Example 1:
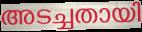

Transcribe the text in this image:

അടച്ചതായി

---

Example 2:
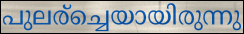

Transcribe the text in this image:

പുലര്ച്ചെയായിരുന്നു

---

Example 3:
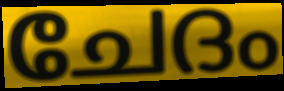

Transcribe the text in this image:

ചേദം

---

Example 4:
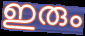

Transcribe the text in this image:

ഇരും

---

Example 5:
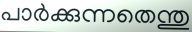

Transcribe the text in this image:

പാർക്കുന്നതെന്തു